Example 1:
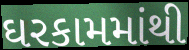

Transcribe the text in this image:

ઘરકામમાંથી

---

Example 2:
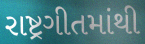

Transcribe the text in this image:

રાષ્ટ્રગીતમાંથી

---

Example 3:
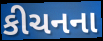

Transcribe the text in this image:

કીચનના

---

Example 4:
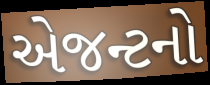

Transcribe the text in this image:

એજન્ટનો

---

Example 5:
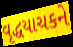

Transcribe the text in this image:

વૃદ્ધયાચકને